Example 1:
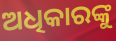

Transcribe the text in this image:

ଅଧିକାରଙ୍କୁ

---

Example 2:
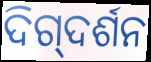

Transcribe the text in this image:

ଦିଗ୍‍ଦର୍ଶନ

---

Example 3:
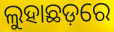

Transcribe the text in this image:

ଲୁହାଛଡ଼ରେ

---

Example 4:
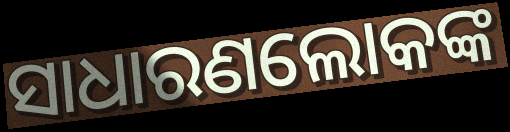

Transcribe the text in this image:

ସାଧାରଣଲୋକଙ୍କ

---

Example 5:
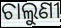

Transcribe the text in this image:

ଚାଲୁଣୀ